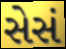
સેસં